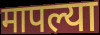
मापल्या